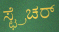
ಸ್ಟ್ರೆಚರ್